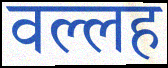
वल्लह